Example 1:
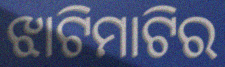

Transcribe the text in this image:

ଝାଟିମାଟିର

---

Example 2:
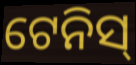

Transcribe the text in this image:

ଟେନିସ୍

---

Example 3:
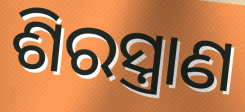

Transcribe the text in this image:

ଶିରସ୍ତ୍ରାଣ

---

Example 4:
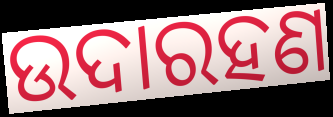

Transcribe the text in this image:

ଉଦାରହଣ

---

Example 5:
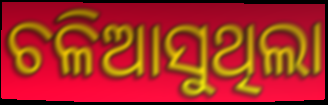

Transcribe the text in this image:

ଚଳିଆସୁଥିଲା